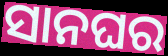
ସାନଘର